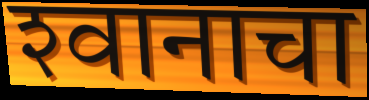
श्वानाचा